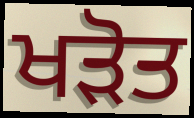
ਖੜੋਤ